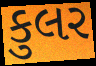
કુલર